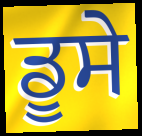
ਡੂਸੇ